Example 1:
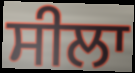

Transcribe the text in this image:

ਸੀਲਾ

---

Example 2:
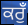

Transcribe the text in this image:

ਕਰੁਁ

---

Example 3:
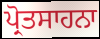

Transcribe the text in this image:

ਪ੍ਰੋਤਸਾਹਨਾ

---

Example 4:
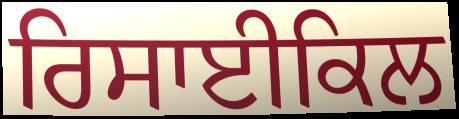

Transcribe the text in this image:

ਰਿਸਾਈਕਿਲ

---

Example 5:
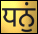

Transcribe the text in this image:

ਧਨੁਂ